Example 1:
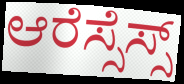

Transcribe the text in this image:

ಆರೆಸ್ಸೆಸ್ಸ್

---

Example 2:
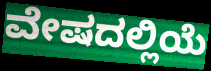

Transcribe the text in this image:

ವೇಷದಲ್ಲಿಯೆ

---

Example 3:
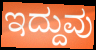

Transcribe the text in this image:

ಇದ್ದುವು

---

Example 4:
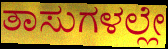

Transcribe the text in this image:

ತಾಸುಗಳಲ್ಲೇ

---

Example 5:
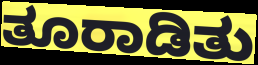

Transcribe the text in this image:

ತೂರಾಡಿತು